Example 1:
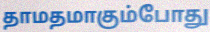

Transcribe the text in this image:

தாமதமாகும்போது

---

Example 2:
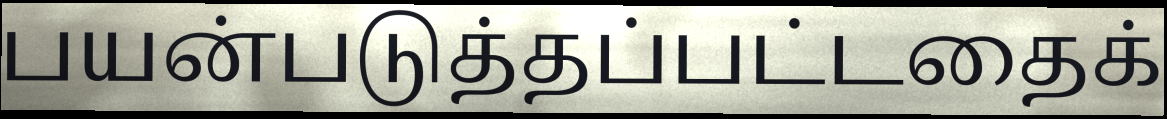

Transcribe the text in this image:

பயன்படுத்தப்பட்டதைக்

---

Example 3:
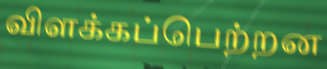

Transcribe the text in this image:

விளக்கப்பெற்றன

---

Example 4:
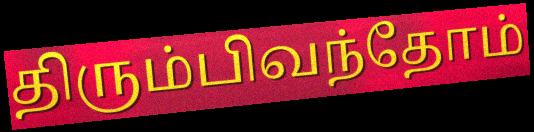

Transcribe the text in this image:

திரும்பிவந்தோம்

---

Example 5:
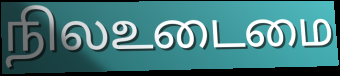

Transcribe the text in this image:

நிலஉடைமை